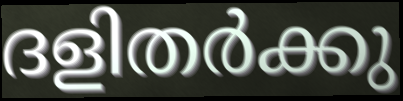
ദളിതർക്കു